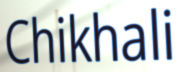
Chikhali